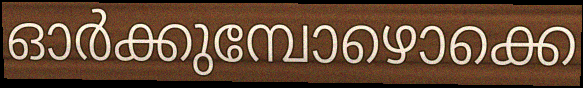
ഓർക്കുമ്പോഴൊക്കെ